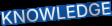
KNOWLEDGE